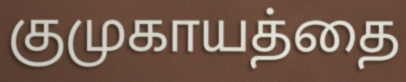
குமுகாயத்தை